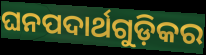
ଘନପଦାର୍ଥଗୁଡ଼ିକର